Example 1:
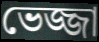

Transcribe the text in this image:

ভেজ্জা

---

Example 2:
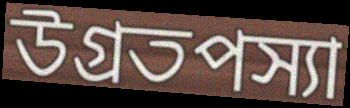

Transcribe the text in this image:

উগ্রতপস্যা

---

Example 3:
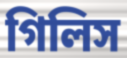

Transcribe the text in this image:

গিলিস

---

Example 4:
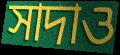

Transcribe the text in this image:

সাদাও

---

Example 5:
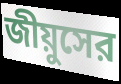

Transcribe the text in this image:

জীয়ুসের